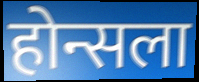
होन्सला